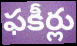
ఫకీర్లు